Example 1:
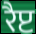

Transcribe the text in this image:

रैप्ट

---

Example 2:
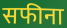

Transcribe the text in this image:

सफीना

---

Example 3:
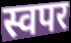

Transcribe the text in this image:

स्वपर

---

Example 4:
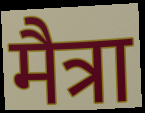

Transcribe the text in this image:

मैत्रा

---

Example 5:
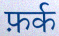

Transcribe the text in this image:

फ़र्क